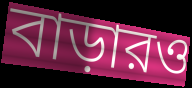
বাড়ারও